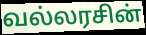
வல்லரசின்